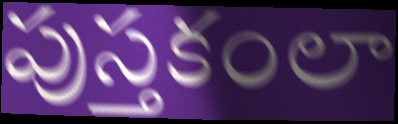
పుస్తకంలా